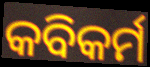
କବିକର୍ମ